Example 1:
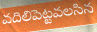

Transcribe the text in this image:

వదిలిపెట్టవలసిన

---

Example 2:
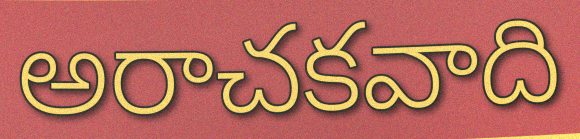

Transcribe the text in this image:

అరాచకవాది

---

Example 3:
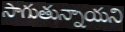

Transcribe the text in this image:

సాగుతున్నాయని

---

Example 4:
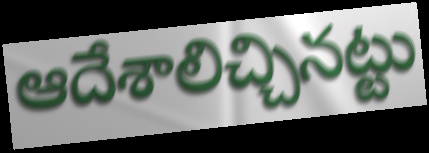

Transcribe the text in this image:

ఆదేశాలిచ్చినట్టు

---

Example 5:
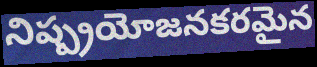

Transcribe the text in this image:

నిష్ప్రయోజనకరమైన